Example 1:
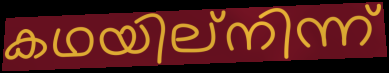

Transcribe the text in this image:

കഥയില്നിന്ന്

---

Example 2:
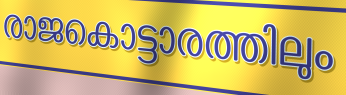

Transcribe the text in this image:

രാജകൊട്ടാരത്തിലും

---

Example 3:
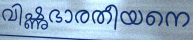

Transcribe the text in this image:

വിഷ്ണുഭാരതീയനെ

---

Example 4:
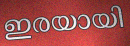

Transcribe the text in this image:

ഇരയായി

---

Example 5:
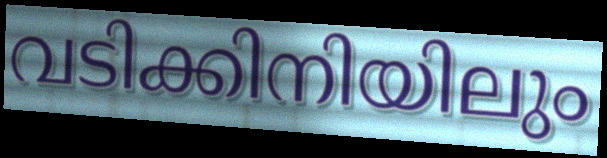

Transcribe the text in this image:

വടിക്കിനിയിലും